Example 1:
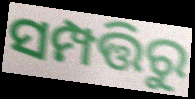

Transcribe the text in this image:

ସମ୍ପତ୍ତିରୁ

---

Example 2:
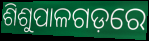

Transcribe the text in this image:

ଶିଶୁପାଳଗଡ଼ରେ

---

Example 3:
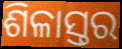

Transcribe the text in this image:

ଶିଳାସ୍ତର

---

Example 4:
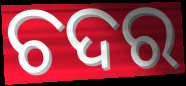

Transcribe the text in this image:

ଚଦର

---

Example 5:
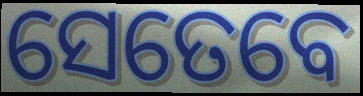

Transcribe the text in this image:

ସେତେବେ